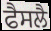
ਫੈਸਲੈ